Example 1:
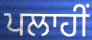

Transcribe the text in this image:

ਪਲਾਹੀਂ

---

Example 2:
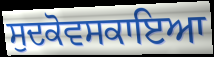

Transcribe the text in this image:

ਸੁਦਕੋਵਸਕਾਇਆ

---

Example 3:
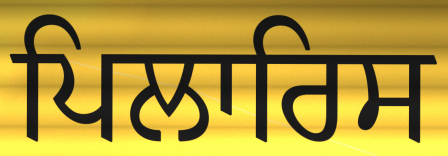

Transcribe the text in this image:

ਪਿਲਾਰਿਸ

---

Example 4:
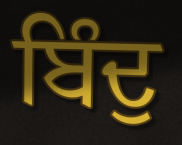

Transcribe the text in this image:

ਬਿੰਦੁ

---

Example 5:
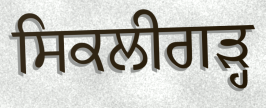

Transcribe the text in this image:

ਸਿਕਲੀਗੜ੍ਹ